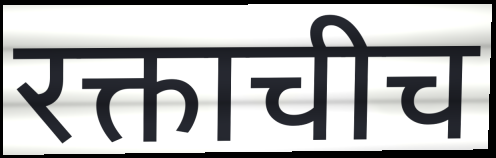
रक्ताचीच